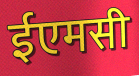
ईएमसी